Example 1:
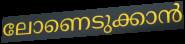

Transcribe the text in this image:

ലോണെടുക്കാൻ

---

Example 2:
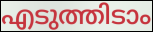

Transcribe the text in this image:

എടുത്തിടാം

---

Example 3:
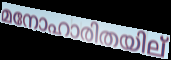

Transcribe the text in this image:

മനോഹാരിതയില്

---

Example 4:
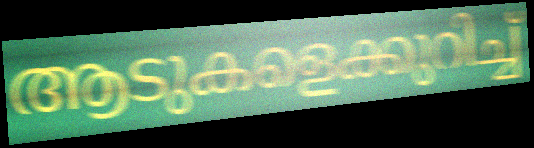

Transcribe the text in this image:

ആടുകളെക്കുറിച്ച്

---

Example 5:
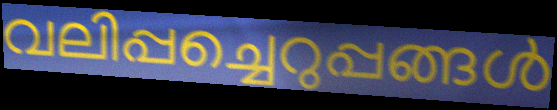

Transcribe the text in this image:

വലിപ്പച്ചെറുപ്പങ്ങൾ